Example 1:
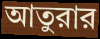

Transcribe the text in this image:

আতুরার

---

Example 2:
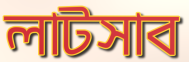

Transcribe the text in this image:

লাটসাব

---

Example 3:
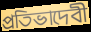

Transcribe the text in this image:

প্রতিভাদেবী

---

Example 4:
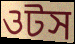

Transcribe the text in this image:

ওটস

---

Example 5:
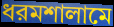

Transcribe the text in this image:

ধরমশালামে